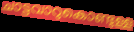
ചാട്ടവാറുകൊണ്ടുള്ള